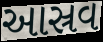
આસ્રવ